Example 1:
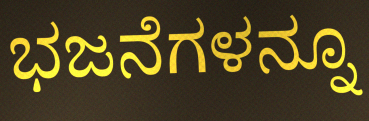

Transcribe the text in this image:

ಭಜನೆಗಳನ್ನೂ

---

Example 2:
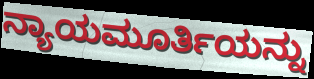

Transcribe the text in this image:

ನ್ಯಾಯಮೂರ್ತಿಯನ್ನು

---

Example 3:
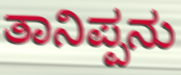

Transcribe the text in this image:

ತಾನಿಪ್ಪನು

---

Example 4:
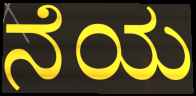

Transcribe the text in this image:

ನೆಯ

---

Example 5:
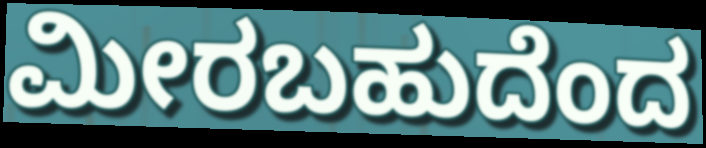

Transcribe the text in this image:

ಮೀರಬಹುದೆಂದ